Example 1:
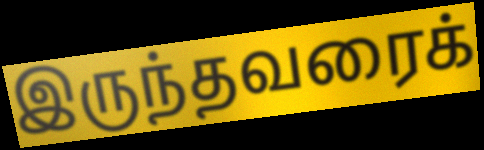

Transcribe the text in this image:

இருந்தவரைக்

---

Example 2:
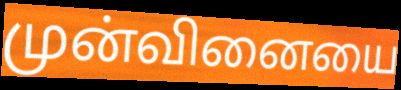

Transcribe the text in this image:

முன்வினையை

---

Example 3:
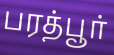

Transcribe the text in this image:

பரத்பூர்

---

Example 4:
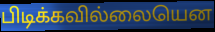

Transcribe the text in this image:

பிடிக்கவில்லையென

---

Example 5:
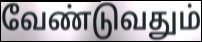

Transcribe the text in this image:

வேண்டுவதும்